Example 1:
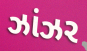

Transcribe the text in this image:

ઝાંઝર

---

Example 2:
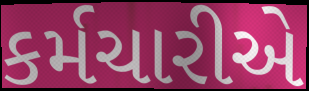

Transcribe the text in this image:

કર્મચારીએ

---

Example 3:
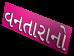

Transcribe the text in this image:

વનતારાનો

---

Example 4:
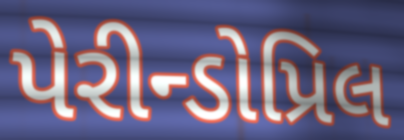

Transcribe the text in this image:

પેરીન્ડોપ્રિલ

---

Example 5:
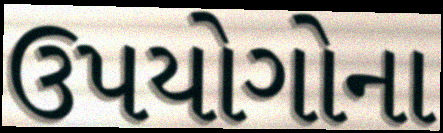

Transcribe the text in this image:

ઉપયોગોના